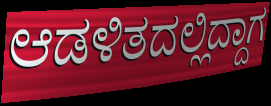
ಆಡಳಿತದಲ್ಲಿದ್ದಾಗ